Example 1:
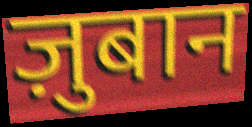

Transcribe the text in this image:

ज़ुबान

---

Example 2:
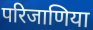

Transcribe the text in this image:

परिजाणिया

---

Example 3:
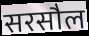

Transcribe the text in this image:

सरसौल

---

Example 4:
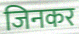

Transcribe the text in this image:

जिनकर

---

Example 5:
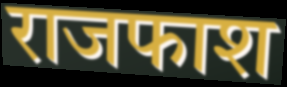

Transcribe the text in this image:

राजफाश